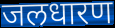
जलधारण